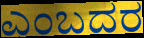
ಎಂಬದರ